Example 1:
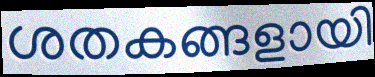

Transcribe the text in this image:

ശതകങ്ങളായി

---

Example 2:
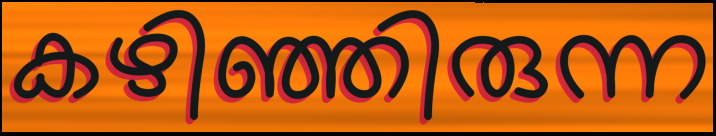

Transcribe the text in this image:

കഴിഞ്ഞിരുന്ന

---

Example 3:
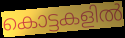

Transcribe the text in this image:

കൊട്ടകളിൽ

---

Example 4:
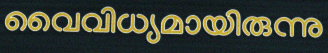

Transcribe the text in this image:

വൈവിധ്യമായിരുന്നു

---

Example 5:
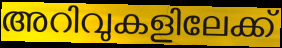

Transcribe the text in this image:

അറിവുകളിലേക്ക്